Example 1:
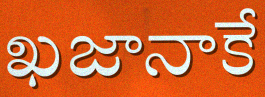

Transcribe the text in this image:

ఖజానాకే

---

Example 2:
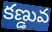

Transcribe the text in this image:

కణ్డువ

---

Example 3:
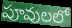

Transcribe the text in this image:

పూవులలో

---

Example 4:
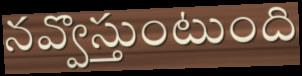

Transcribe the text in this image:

నవ్వొస్తుంటుంది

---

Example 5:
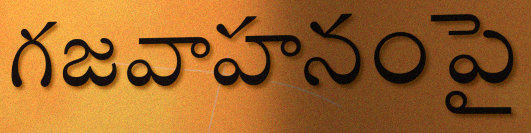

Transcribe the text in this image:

గజవాహనంపై